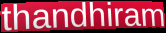
thandhiram